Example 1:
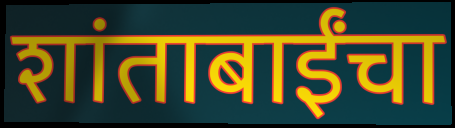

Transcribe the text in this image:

शांताबाईंचा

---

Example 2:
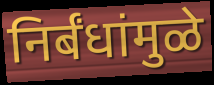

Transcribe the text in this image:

निर्बंधांमुळे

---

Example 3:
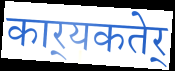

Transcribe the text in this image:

कार्यकतेर्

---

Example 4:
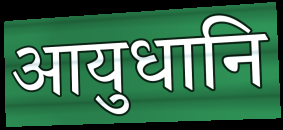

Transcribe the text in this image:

आयुधानि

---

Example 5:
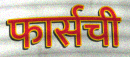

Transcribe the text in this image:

फार्सची